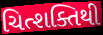
ચિત્શક્તિથી